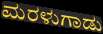
ಮರಳುಗಾಡು